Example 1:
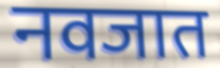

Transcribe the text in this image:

नवजात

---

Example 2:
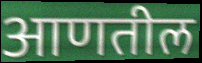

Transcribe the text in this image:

आणतील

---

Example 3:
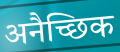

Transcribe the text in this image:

अनैच्छिक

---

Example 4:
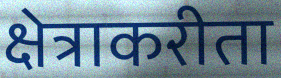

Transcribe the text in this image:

क्षेत्राकरीता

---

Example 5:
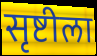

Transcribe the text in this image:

सृष्टीला